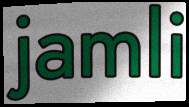
jamli